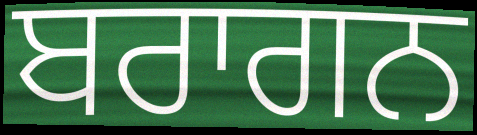
ਬਰਾਗਨ